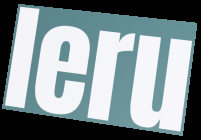
leru